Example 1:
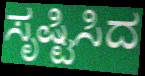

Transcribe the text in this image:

ಸೃಷ್ಟಿಸಿದ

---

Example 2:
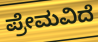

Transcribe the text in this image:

ಪ್ರೇಮವಿದೆ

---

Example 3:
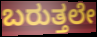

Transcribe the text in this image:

ಬರುತ್ತಲೇ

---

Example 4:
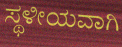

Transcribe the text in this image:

ಸ್ಥಳೀಯವಾಗಿ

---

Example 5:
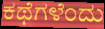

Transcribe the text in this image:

ಕಥೆಗಳೆಂದು